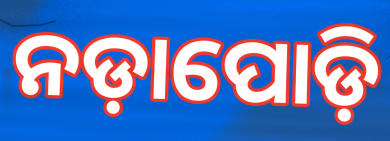
ନଡ଼ାପୋଡ଼ି